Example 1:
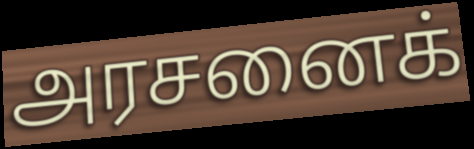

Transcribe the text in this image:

அரசனைக்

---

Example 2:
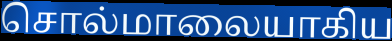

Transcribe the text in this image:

சொல்மாலையாகிய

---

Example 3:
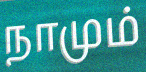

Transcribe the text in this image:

நாமும்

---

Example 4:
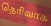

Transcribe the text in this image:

தெரிவாக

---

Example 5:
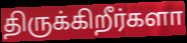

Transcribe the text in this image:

திருக்கிறீர்களா